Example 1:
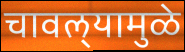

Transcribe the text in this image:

चावल्यामुळे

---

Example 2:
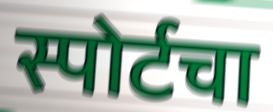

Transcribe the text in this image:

स्पोर्टचा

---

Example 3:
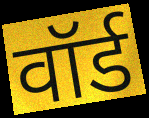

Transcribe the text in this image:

वॉर्ड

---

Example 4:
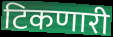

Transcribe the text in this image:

टिकणारी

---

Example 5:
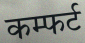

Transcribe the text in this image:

कम्फर्ट